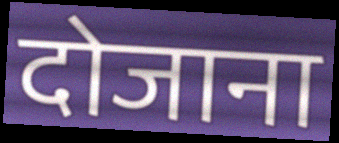
दोजाना